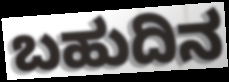
ಬಹುದಿನ